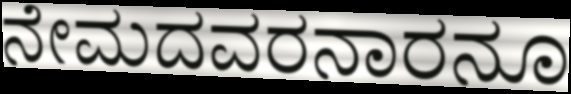
ನೇಮದವರನಾರನೂ